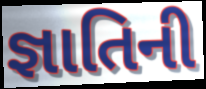
જ્ઞાતિની